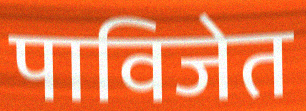
पाविजेत